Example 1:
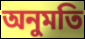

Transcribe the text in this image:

অনুমতি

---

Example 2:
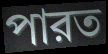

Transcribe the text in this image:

পারত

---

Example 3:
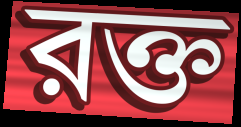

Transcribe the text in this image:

রক্ত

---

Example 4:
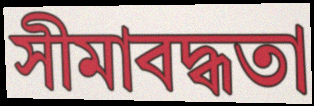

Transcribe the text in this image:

সীমাবদ্ধতা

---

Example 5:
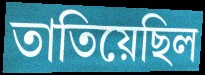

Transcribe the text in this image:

তাতিয়েছিল